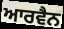
ਆਰਵੈਨ